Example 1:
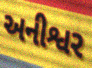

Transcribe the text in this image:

અનીશ્વર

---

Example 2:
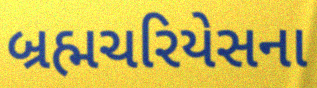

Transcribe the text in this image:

બ્રહ્મચરિયેસના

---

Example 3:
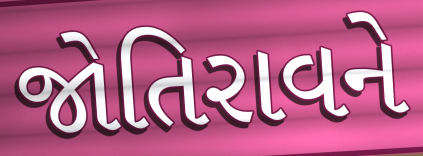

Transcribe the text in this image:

જોતિરાવને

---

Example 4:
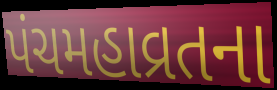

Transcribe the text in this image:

પંચમહાવ્રતના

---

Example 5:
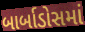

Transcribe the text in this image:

બાર્બાડોસમાં